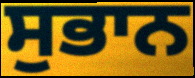
ਸੁਭਾਨ